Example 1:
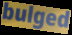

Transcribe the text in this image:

bulged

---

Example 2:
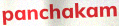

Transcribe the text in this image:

panchakam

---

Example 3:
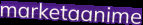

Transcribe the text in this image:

marketaanime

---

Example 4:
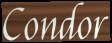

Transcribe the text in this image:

Condor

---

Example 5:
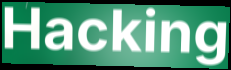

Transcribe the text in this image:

Hacking